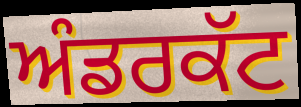
ਅੰਡਰਕੱਟ